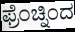
ಫ್ರೆಂಚ್ನಿಂದ